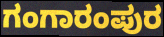
ಗಂಗಾರಂಪುರ